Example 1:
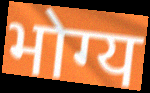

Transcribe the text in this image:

भोग्य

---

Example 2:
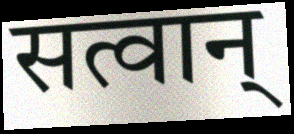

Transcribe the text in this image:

सत्वान्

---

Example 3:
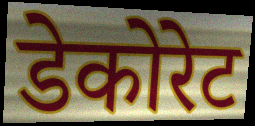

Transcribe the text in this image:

डेकोरेट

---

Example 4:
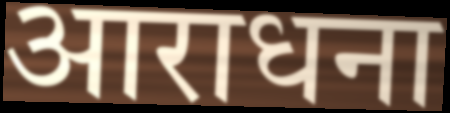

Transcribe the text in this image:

आराधना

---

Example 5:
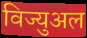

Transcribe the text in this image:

विज्युअल